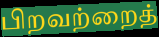
பிறவற்றைத்